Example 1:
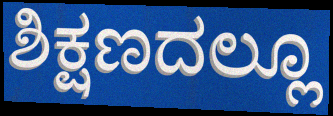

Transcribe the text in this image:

ಶಿಕ್ಷಣದಲ್ಲೂ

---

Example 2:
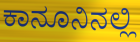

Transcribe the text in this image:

ಕಾನೂನಿನಲ್ಲಿ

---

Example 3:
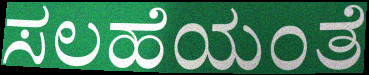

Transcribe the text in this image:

ಸಲಹೆಯಂತೆ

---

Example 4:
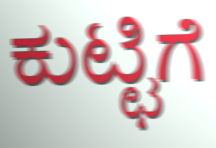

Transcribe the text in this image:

ಕುಟ್ಟಿಗೆ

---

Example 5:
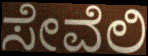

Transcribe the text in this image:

ಸೇವೆಲಿ